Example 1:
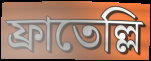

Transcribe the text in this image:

ফ্রাতেল্লি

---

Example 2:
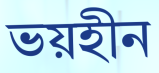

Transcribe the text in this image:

ভয়হীন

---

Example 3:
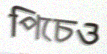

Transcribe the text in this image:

পিচেও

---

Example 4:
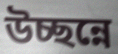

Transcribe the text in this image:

উচ্ছন্নে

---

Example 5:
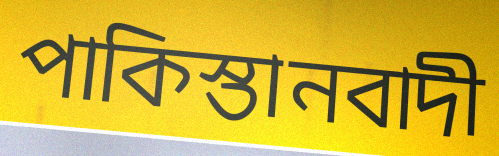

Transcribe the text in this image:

পাকিস্তানবাদী